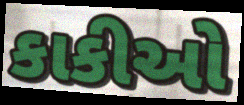
કાકીઓ